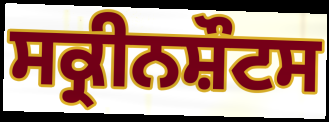
ਸਕ੍ਰੀਨਸ਼ੌਟਸ